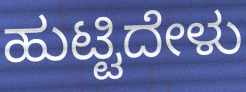
ಹುಟ್ಟಿದೇಳು